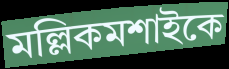
মল্লিকমশাইকে